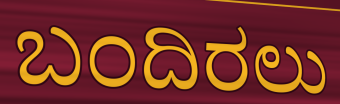
ಬಂದಿರಲು